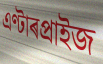
এণ্টাৰপ্ৰাইজ